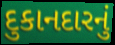
દુકાનદારનું